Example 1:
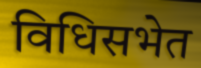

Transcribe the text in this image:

विधिसभेत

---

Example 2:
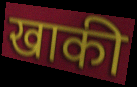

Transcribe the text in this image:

खाकी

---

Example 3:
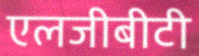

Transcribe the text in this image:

एलजीबीटी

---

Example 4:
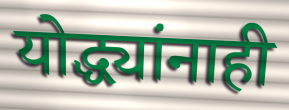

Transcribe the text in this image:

योद्ध्यांनाही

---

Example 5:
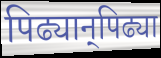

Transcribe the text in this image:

पिढ्यान्‌पिढ्या